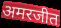
अमरजीत